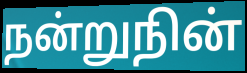
நன்றுநின்